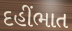
દહીંભાત